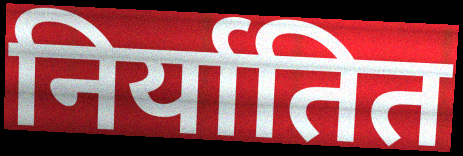
निर्यातित